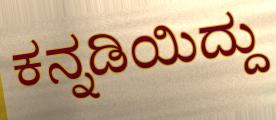
ಕನ್ನಡಿಯಿದ್ದು